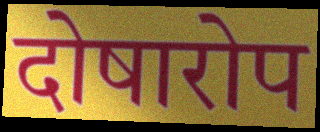
दोषारोप